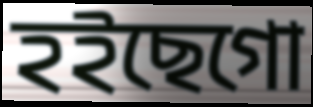
হইছেগো